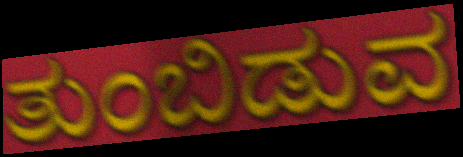
ತುಂಬಿಡುವ